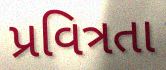
પ્રવિત્રતા